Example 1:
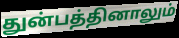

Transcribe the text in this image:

துன்பத்தினாலும்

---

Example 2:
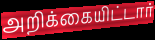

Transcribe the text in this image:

அறிக்கையிட்டார்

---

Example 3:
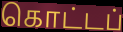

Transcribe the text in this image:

கொட்டப்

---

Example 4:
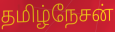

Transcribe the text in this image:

தமிழ்நேசன்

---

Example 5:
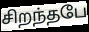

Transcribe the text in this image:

சிறந்தபே